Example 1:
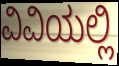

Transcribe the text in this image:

ವಿವಿಯಲ್ಲಿ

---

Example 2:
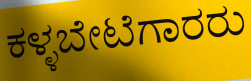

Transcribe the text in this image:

ಕಳ್ಳಬೇಟೆಗಾರರು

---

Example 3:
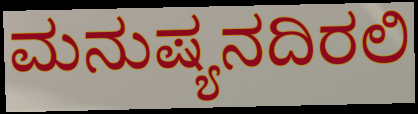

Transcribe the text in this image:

ಮನುಷ್ಯನದಿರಲಿ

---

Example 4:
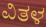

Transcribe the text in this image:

ವಿತಳ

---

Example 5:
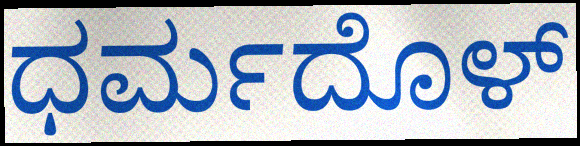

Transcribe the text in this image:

ಧರ್ಮದೊಳ್